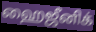
ஹைஜீனிக்